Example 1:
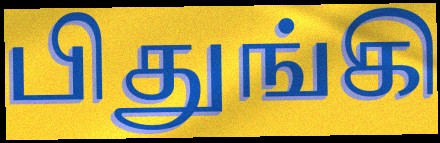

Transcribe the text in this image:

பிதுங்கி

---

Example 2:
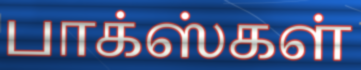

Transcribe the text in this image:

பாக்ஸ்கள்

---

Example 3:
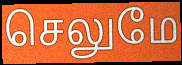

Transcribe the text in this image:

செலுமே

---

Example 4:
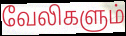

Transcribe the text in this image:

வேலிகளும்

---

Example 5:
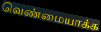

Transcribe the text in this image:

வெண்மையாக்க